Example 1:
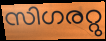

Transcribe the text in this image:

സിഗരറ്റു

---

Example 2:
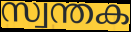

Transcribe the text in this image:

സ്വന്തക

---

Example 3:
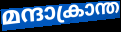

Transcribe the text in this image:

മന്ദാക്രാന്ത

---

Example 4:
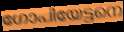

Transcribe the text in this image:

ഗോപിയേട്ടനെ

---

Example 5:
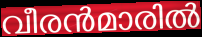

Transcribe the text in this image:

വീരൻമാരിൽ